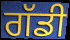
ਗੱਡੀ